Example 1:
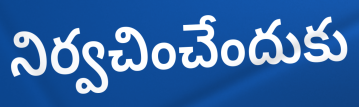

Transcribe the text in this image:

నిర్వచించేందుకు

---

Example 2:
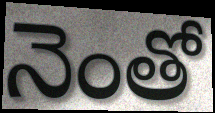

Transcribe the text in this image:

నెంతో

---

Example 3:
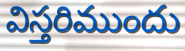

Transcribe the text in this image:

విస్తరిముందు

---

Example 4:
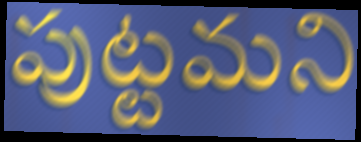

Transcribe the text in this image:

పుట్టమని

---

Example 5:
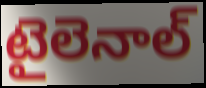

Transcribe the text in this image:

టైలెనాల్